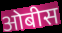
ओबीस